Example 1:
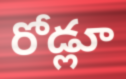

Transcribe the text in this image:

రోడ్లూ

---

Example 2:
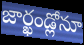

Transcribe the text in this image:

జార్ఖండ్లోనూ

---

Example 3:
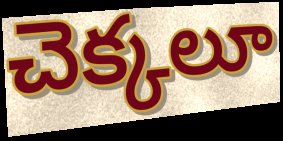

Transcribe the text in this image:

చెక్కలూ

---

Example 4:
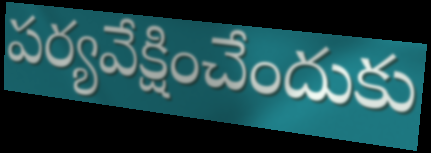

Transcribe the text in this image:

పర్యవేక్షించేందుకు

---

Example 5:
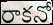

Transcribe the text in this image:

రాకనో